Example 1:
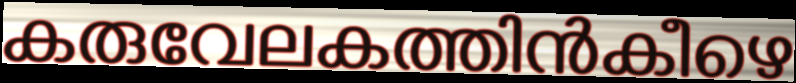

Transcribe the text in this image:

കരുവേലകത്തിൻകീഴെ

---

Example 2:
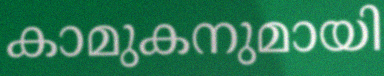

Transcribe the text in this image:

കാമുകനുമായി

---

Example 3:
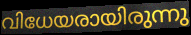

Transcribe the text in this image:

വിധേയരായിരുന്നു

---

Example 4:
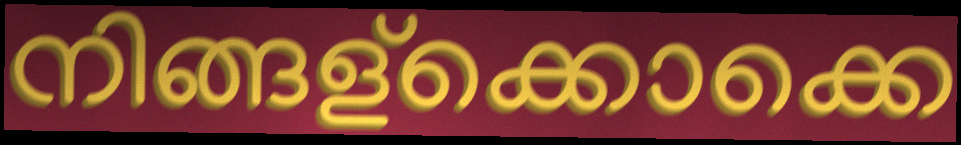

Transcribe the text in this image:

നിങ്ങള്ക്കൊക്കെ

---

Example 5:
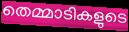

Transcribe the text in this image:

തെമ്മാടികളുടെ